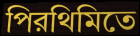
পিরথিমিতে